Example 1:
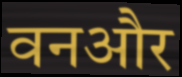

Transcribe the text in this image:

वनऔर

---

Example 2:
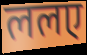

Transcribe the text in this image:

ललए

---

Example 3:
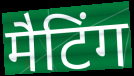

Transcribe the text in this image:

मैटिंग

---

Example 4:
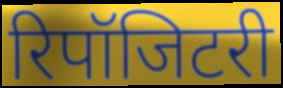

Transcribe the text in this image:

रिपॉजिटरी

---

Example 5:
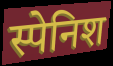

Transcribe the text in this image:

स्पेनिश